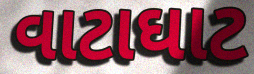
વાટાઘાટ